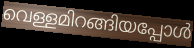
വെള്ളമിറങ്ങിയപ്പോൾ